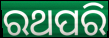
ରଥପରି